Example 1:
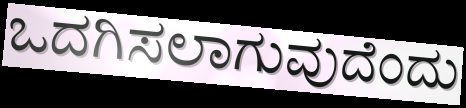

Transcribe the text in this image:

ಒದಗಿಸಲಾಗುವುದೆಂದು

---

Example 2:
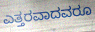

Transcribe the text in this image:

ಎತ್ತರವಾದವರೂ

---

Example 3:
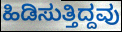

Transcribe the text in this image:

ಹಿಡಿಸುತ್ತಿದ್ದವು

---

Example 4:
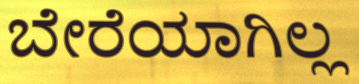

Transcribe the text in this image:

ಬೇರೆಯಾಗಿಲ್ಲ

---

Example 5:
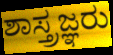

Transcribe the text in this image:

ಶಾಸ್ತ್ರಜ್ಞರು